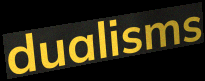
dualisms